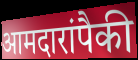
आमदारांपैकी